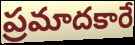
ప్రమాదకారే